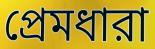
প্রেমধারা